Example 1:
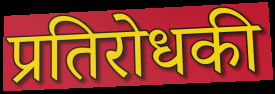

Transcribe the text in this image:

प्रतिरोधकी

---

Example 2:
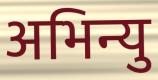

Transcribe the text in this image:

अभिन्यु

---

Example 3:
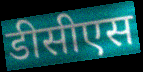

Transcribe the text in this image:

डीसीएस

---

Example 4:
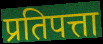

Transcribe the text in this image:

प्रतिपत्ता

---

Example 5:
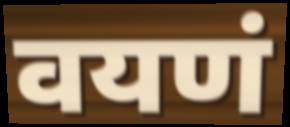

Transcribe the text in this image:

वयणं